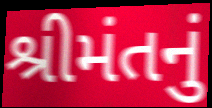
શ્રીમંતનું